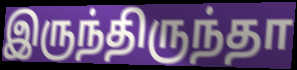
இருந்திருந்தா